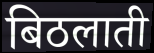
बिठलाती